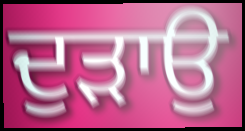
ਦੁੜਾਉ